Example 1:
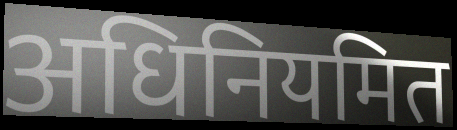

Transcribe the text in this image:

अधिनियमित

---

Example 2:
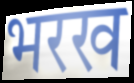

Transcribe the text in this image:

भरख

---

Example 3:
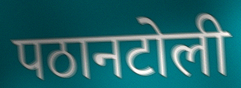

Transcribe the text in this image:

पठानटोली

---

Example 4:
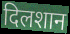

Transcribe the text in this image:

दिलशान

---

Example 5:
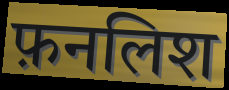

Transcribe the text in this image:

फ़नलिश